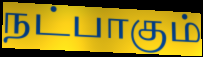
நட்பாகும்